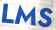
LMS